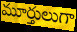
మూర్తులుగా